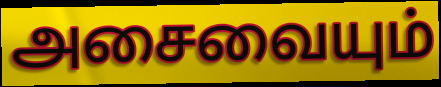
அசைவையும்